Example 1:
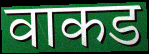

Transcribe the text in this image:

वाकड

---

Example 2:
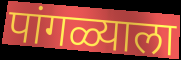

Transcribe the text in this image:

पांगळ्याला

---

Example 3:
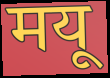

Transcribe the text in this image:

मयू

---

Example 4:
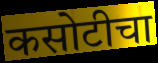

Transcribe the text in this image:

कसोटीचा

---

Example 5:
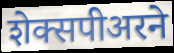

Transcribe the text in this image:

शेक्सपीअरने